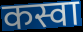
कस्वा